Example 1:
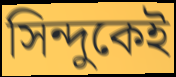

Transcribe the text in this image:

সিন্দুকেই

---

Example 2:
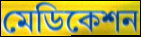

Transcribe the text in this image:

মেডিকেশন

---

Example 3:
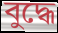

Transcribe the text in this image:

বুদ্ধে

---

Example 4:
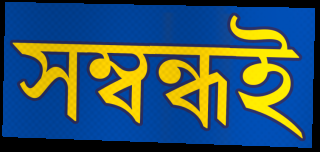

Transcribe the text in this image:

সম্বন্ধই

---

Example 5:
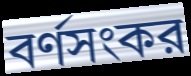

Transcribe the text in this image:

বর্ণসংকর